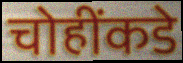
चोहींकडे